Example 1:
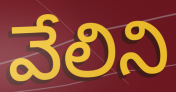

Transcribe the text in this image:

వేలిని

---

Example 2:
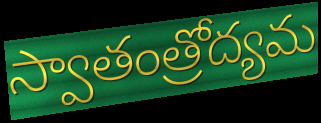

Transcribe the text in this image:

స్వాతంత్రోద్యమ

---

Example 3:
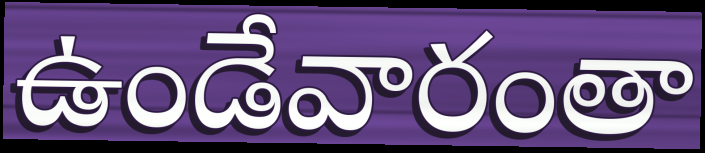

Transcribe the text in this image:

ఉండేవారంతా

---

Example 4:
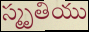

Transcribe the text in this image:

స్మృతియు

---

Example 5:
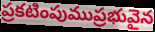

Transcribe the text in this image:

ప్రకటింపుముప్రభువైన